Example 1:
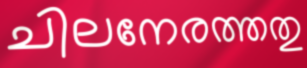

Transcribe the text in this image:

ചിലനേരത്തതു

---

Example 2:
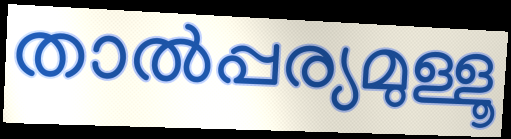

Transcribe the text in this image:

താൽപ്പര്യമുള്ളൂ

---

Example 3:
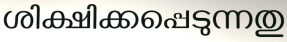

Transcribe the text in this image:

ശിക്ഷിക്കപ്പെടുന്നതു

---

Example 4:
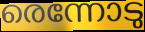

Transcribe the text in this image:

രെന്നോടു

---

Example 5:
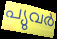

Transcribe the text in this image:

പ്യുവർ